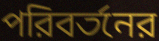
পরিবর্তনের